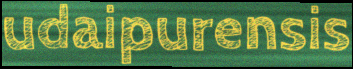
udaipurensis